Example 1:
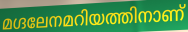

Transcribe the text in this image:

മഗ്ദലേനമറിയത്തിനാണ്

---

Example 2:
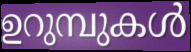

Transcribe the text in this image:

ഉറുമ്പുകൾ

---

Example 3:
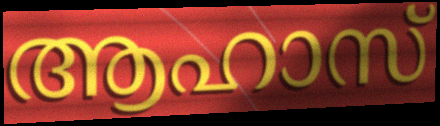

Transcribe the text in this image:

ആഹാസ്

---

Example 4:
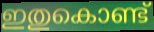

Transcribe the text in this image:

ഇതുകൊണ്ട്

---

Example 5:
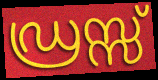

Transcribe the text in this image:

ഡ്രസ്സ്